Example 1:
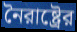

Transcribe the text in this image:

নৈরাষ্ট্রের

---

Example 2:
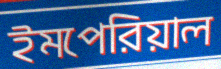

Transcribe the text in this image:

ইমপেরিয়াল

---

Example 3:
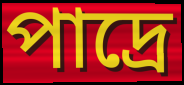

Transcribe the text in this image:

পাদ্রে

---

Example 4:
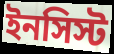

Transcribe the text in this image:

ইনসিস্ট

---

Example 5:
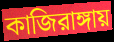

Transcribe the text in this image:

কাজিরাঙ্গায়